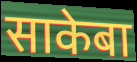
साकेबा